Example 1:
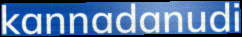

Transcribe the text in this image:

kannadanudi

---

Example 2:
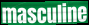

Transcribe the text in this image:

masculine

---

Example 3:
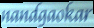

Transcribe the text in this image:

nandgaokar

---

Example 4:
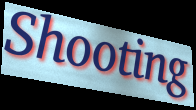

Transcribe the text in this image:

Shooting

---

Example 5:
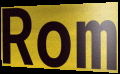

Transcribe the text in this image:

Rom